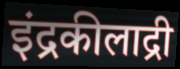
इंद्रकीलाद्री